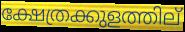
ക്ഷേത്രക്കുളത്തില്